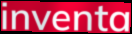
inventa